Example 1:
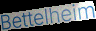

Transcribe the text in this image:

Bettelheim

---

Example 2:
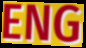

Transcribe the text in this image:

ENG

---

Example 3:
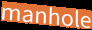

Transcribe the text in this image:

manhole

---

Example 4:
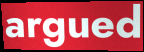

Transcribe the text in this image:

argued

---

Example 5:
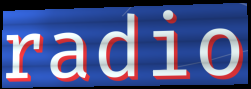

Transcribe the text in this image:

radio